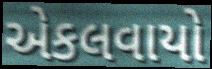
એકલવાયો